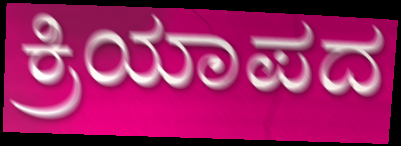
ಕ್ರಿಯಾಪದ